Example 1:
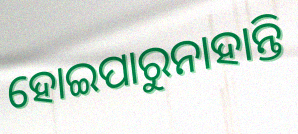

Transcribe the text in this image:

ହୋଇପାରୁନାହାନ୍ତି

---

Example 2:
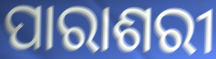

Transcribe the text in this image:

ପାରାଶରୀ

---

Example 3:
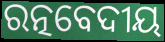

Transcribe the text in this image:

ରତ୍ନବେଦୀୟ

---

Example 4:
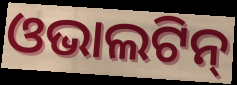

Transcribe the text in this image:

ଓଭାଲଟିନ୍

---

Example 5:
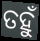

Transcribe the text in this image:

ତହୁଁ